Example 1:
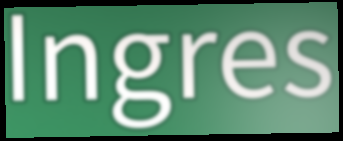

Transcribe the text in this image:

Ingres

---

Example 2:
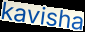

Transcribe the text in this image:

kavisha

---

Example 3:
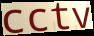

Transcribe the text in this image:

cctv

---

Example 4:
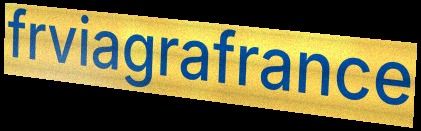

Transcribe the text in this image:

frviagrafrance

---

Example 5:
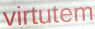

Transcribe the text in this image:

virtutem